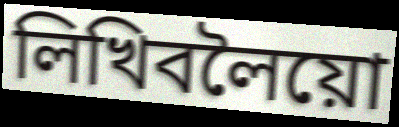
লিখিবলৈয়ো